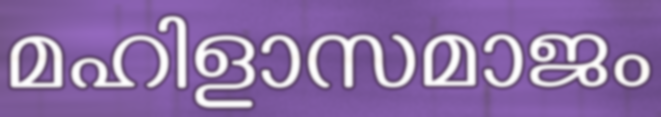
മഹിളാസമാജം